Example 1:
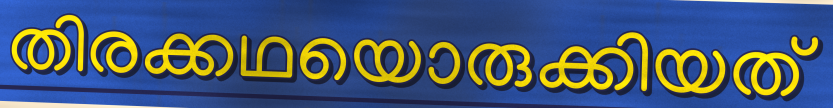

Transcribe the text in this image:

തിരക്കഥയൊരുക്കിയത്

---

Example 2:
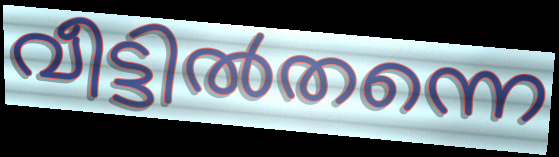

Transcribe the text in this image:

വീട്ടിൽതന്നെ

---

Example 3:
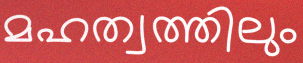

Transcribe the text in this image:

മഹത്വത്തിലും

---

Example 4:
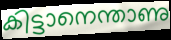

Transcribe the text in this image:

കിട്ടാനെന്താണു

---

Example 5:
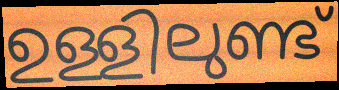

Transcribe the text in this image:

ഉള്ളിലുണ്ട്